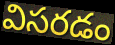
విసరడం